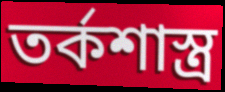
তর্কশাস্ত্র